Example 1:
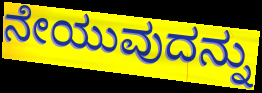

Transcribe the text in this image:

ನೇಯುವುದನ್ನು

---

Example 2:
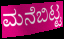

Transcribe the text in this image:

ಮನೆಬಿಟ್ಟ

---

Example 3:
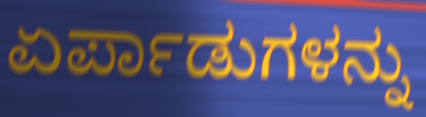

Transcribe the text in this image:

ಏರ್ಪಾಡುಗಳನ್ನು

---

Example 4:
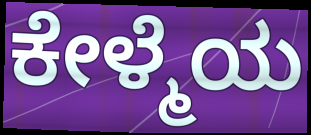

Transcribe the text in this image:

ಕೇಳ್ಮೆಯ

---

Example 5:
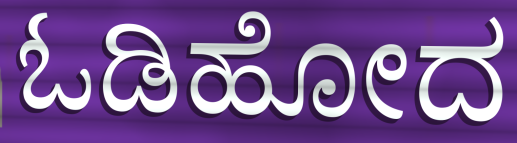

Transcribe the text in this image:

ಓಡಿಹೋದ